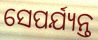
ସେପର୍ଯ୍ୟନ୍ତ